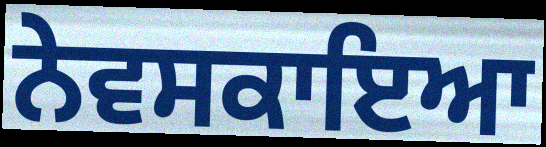
ਨੇਵਸਕਾਇਆ